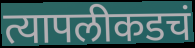
त्यापलीकडचं